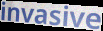
invasive